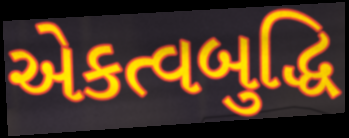
એકત્વબુદ્ધિ